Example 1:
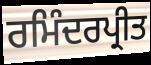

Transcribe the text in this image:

ਰਮਿੰਦਰਪ੍ਰੀਤ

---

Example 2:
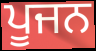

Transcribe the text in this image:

ਪੂਜਨ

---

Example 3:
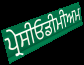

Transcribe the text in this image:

ਪ੍ਰੇਸੀਓਡੀਮੀਅਮ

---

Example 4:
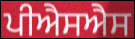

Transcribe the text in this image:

ਪੀਐਸਐਸ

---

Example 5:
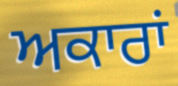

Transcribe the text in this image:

ਅਕਾਰਾਂ